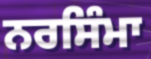
ਨਰਸਿੰਮਾ